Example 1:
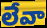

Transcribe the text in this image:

లేవా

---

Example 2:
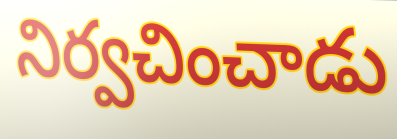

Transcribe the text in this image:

నిర్వచించాడు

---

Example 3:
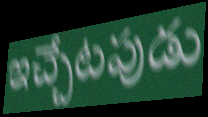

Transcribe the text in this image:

ఇచ్చేటపుడు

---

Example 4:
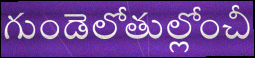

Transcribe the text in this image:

గుండెలోతుల్లోంచీ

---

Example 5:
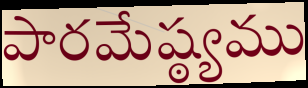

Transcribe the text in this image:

పారమేష్ఠ్యము